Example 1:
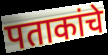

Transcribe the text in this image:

पताकांचे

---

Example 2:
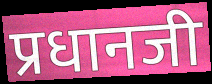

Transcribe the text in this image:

प्रधानजी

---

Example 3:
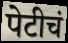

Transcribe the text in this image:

पेटीचं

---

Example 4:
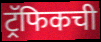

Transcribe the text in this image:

ट्रॅफिकची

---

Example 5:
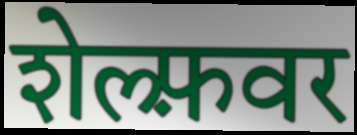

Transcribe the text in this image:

शेल्फ़वर